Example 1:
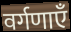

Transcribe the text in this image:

वर्गणाएँ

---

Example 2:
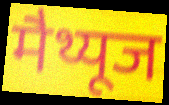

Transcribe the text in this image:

मैथ्‍यूज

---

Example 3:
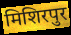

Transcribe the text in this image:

मिशिरपुर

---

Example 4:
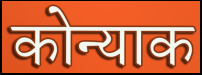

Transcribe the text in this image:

कोन्याक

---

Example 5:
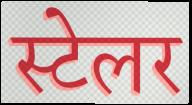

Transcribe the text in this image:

स्टेलर